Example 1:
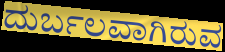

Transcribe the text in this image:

ದುರ್ಬಲವಾಗಿರುವ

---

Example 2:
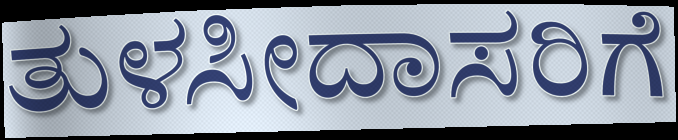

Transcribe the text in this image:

ತುಳಸೀದಾಸರಿಗೆ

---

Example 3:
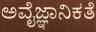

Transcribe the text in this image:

ಅವೈಜ್ಞಾನಿಕತೆ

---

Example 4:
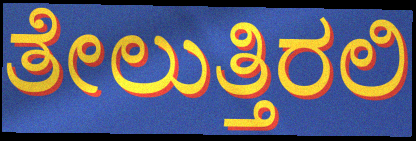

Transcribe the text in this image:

ತೇಲುತ್ತಿರಲಿ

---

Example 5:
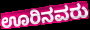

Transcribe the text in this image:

ಊರಿನವರು